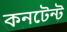
কনটেন্ট